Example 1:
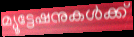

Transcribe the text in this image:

മ്യൂട്ടേഷനുകൾക്ക്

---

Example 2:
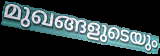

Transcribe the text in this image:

മുഖങ്ങളുടെയും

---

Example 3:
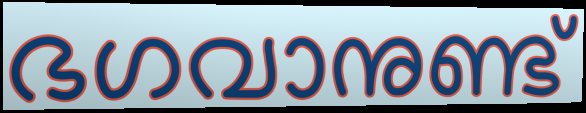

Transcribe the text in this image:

ഭഗവാനുണ്ട്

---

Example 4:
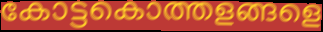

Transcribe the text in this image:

കോട്ടകൊത്തളങ്ങളെ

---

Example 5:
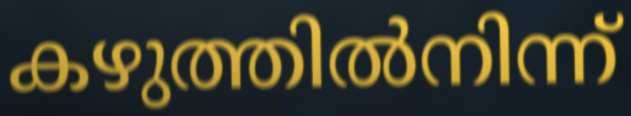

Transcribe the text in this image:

കഴുത്തിൽനിന്ന്